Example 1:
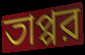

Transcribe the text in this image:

তাপ্পর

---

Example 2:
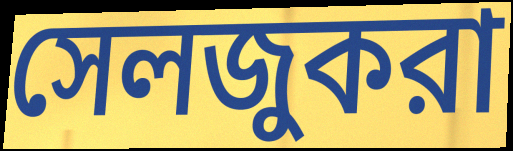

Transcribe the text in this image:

সেলজুকরা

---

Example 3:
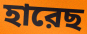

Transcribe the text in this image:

হারেছ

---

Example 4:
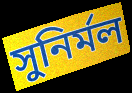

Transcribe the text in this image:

সুনির্মল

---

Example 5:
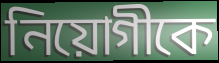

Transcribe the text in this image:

নিয়োগীকে